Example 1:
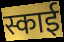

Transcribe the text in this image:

स्काई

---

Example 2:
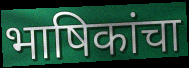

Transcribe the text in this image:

भाषिकांचा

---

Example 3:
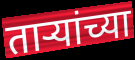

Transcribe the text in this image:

तार्‍यांच्या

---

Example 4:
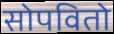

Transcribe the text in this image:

सोपवितो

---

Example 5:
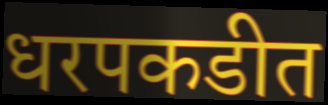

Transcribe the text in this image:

धरपकडीत